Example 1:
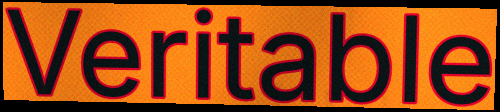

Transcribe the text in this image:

Veritable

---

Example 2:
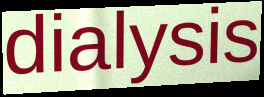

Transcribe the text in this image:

dialysis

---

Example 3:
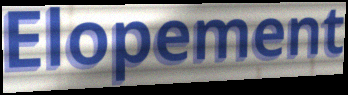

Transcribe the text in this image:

Elopement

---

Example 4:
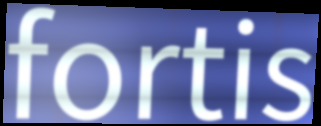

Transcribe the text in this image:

fortis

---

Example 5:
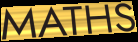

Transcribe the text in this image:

MATHS